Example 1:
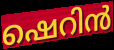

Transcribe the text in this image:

ഷെറിൻ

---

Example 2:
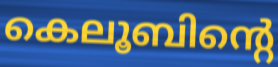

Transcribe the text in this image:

കെലൂബിന്റെ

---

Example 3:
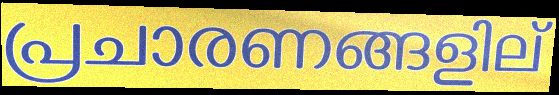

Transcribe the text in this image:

പ്രചാരണങ്ങളില്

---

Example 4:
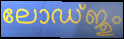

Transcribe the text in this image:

ലോഡ്ജും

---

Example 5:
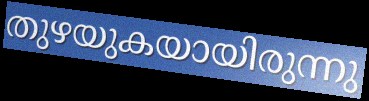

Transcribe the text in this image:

തുഴയുകയായിരുന്നു